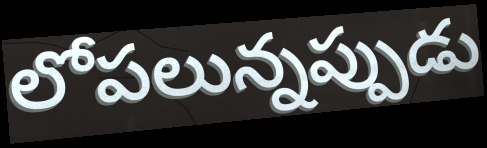
లోపలున్నప్పుడు